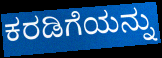
ಕರಡಿಗೆಯನ್ನು